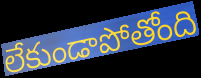
లేకుండాపోతోంది